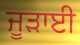
ਜੂੜਾਈ